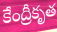
కేంద్రీకృత